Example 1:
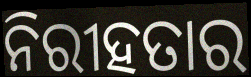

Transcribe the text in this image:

ନିରୀହତାର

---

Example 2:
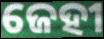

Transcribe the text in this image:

ଜେହୀ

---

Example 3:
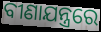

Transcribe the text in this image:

ବୀଣାଯନ୍ତ୍ରରେ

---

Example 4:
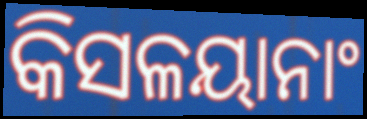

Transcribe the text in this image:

କିସଳୟାନାଂ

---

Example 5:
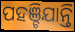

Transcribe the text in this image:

ପହଞ୍ଚିଯାନ୍ତି